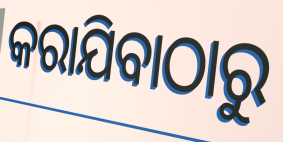
କରାଯିବାଠାରୁ